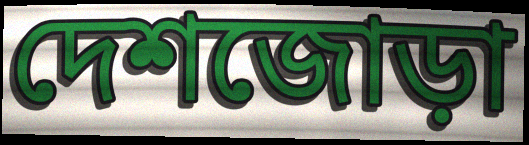
দেশজোড়া